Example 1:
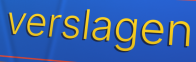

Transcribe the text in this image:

verslagen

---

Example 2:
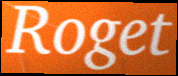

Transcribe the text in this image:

Roget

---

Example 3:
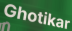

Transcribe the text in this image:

Ghotikar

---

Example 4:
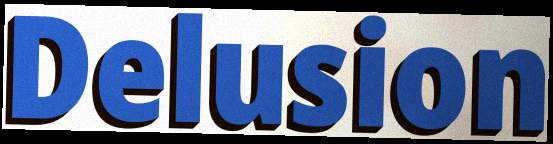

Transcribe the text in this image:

Delusion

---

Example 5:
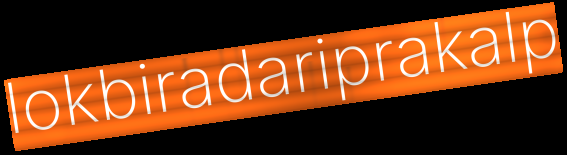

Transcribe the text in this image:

lokbiradariprakalp